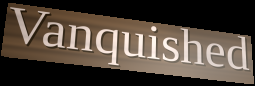
Vanquished